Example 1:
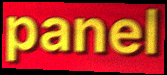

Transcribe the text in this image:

panel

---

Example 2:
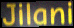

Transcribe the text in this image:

Jilani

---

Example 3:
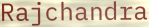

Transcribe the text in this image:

Rajchandra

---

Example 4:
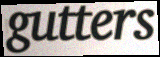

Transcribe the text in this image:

gutters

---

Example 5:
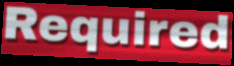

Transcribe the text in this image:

Required